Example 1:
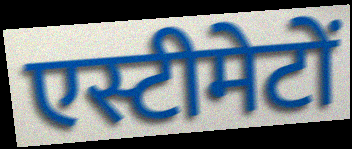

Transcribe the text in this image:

एस्टीमेटों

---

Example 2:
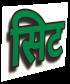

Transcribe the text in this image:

सिट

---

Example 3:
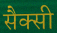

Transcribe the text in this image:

सैक्सी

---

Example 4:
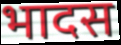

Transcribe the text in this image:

भादस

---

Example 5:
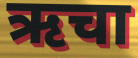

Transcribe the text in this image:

ऋचा